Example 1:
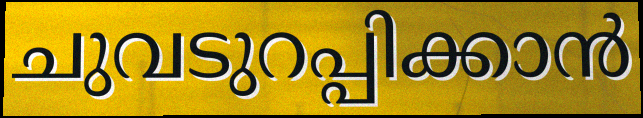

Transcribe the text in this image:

ചുവടുറപ്പിക്കാൻ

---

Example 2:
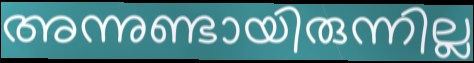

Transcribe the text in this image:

അന്നുണ്ടായിരുന്നില്ല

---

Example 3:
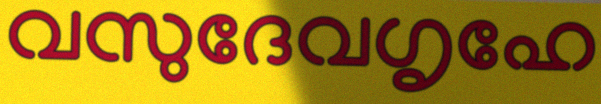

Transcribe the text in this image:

വസുദേവഗൃഹേ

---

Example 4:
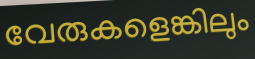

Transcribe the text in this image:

വേരുകളെങ്കിലും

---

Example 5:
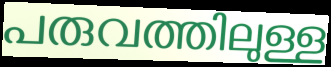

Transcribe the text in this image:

പരുവത്തിലുള്ള